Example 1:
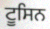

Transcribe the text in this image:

ਟੂਸਿਨ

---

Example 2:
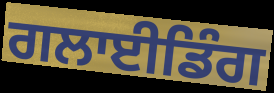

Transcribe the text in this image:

ਗਲਾਈਡਿੰਗ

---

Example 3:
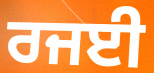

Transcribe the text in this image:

ਰਜਈ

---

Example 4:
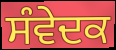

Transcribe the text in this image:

ਸੰਵੇਦਕ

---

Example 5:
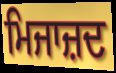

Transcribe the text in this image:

ਮਿਜਾਜ਼ਦ